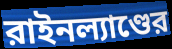
রাইনল্যাণ্ডের